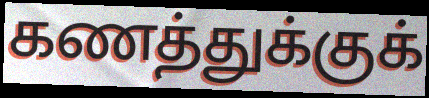
கணத்துக்குக்